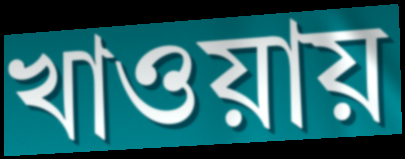
খাওয়ায়